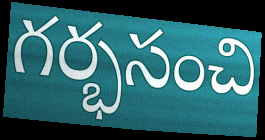
గర్భసంచి